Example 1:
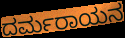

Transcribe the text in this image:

ದರ್ಮರಾಯನ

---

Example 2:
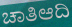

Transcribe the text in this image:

ಚಾತಿಆದಿ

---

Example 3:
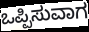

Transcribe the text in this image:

ಒಪ್ಪಿಸುವಾಗ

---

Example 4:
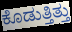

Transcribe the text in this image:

ಕೊಡುತ್ತಿತ್ತು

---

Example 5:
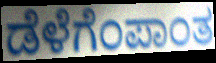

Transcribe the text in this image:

ಡೆಳೆಗೆಂಪಾಂತ